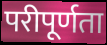
परीपूर्णता